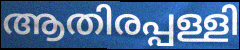
ആതിരപ്പള്ളി